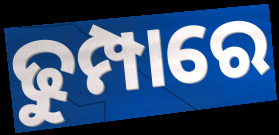
ଢୁମ୍ପାରେ